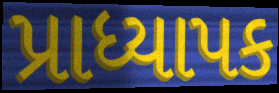
પ્રાધ્યાપક